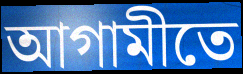
আগামীতে